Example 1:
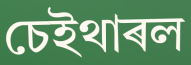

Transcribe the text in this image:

চেইথাৰল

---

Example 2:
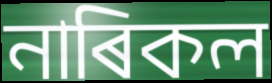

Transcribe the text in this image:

নাৰিকল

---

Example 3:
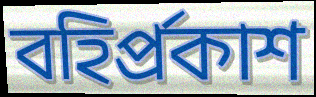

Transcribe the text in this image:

বহিৰ্প্ৰকাশ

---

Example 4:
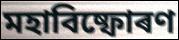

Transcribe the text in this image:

মহাবিষ্ফোৰণ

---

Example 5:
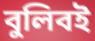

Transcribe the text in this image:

বুলিবই